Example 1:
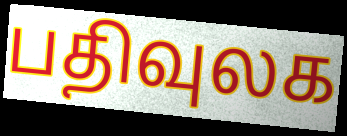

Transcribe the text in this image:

பதிவுலக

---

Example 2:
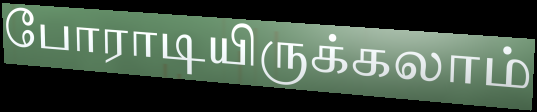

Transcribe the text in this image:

போராடியிருக்கலாம்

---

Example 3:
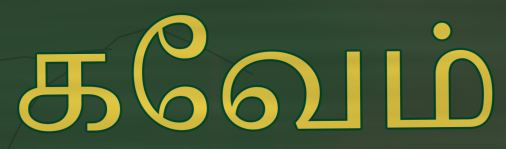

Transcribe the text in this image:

கவேம்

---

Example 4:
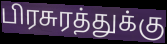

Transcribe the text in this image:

பிரசுரத்துக்கு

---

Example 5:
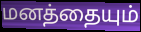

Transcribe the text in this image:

மனத்தையும்